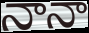
నానా